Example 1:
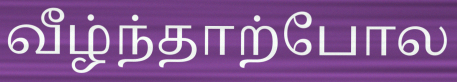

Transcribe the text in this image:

வீழ்ந்தாற்போல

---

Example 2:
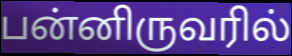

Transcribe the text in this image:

பன்னிருவரில்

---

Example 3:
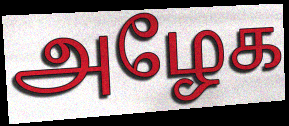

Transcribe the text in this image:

அழேக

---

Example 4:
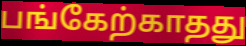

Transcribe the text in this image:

பங்கேற்காதது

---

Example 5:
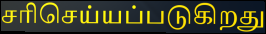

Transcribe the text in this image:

சரிசெய்யப்படுகிறது